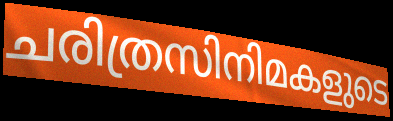
ചരിത്രസിനിമകളുടെ